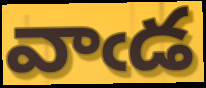
వాఁడ